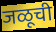
जळूची